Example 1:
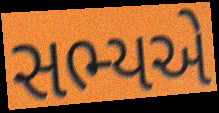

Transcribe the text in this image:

સભ્યએ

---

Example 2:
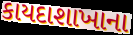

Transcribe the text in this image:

કાયદાશાખાના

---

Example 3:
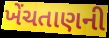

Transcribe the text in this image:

ખેંચતાણની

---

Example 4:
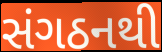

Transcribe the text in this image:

સંગઠનથી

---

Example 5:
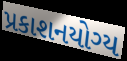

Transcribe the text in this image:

પ્રકાશનયોગ્ય